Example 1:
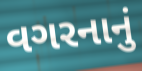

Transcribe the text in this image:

વગરનાનું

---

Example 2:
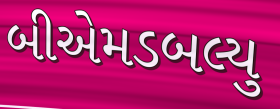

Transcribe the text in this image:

બીએમડબલ્યુ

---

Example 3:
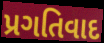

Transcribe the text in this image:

પ્રગતિવાદ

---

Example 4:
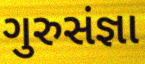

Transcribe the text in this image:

ગુરુસંજ્ઞા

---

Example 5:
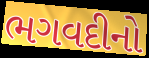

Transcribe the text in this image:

ભગવદીનો